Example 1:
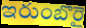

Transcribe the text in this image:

ఇరుంబొరై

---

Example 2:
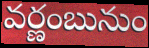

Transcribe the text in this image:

వర్ణంబునుం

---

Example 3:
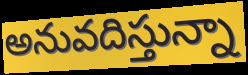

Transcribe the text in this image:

అనువదిస్తున్నా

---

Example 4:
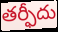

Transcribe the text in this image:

తర్ఫీదు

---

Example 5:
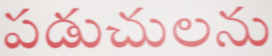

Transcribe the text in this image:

పడుచులను